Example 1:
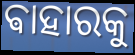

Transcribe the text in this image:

ଵାହାରକୁ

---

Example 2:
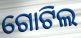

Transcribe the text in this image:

ଗୋଟିଲ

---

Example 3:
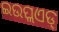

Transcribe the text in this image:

ଇଉପ୍ଲଏଡ୍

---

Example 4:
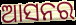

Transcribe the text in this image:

ଆସନର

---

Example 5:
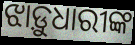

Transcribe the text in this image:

ଝାଡ଼ୁଧାରୀଙ୍କ